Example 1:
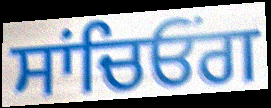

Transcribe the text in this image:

ਸਾਂਚਿਓਂਗ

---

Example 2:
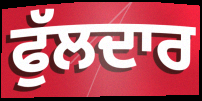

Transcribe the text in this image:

ਫੁੱਲਦਾਰ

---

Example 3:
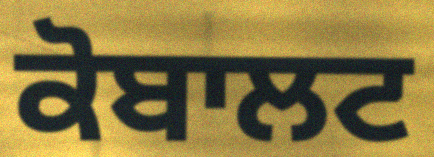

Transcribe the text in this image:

ਕੋਬਾਲਟ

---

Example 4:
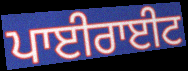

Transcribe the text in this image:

ਪਾਈਰਾਈਟ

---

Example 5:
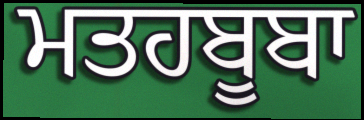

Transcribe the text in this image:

ਮਤਹਬੂਬਾ